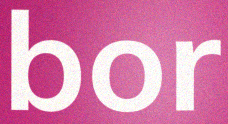
bor